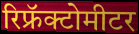
रिफ्रॅक्टोमीटर